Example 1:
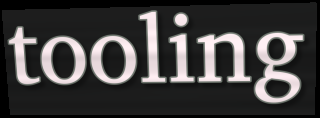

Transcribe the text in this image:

tooling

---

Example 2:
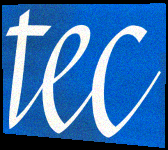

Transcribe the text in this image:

tec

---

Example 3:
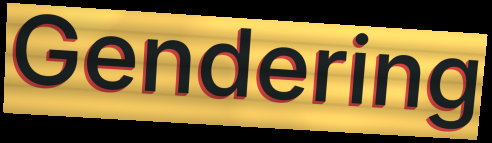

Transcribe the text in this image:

Gendering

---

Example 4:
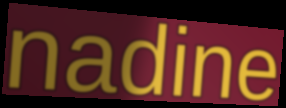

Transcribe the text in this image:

nadine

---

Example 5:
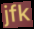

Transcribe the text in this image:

jfk